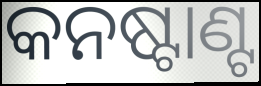
କନଷ୍ଟାଣ୍ଟ